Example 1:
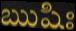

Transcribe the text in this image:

ఋషిః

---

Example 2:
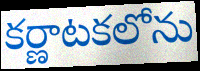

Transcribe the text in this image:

కర్ణాటకలోను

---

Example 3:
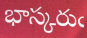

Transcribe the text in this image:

భాస్కరుఁ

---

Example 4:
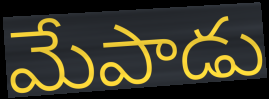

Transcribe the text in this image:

మేపాడు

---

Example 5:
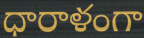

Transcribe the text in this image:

ధారాళంగా